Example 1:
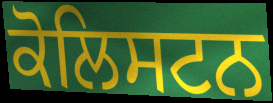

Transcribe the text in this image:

ਕੋਲਿਸਟਨ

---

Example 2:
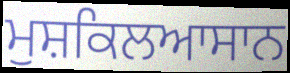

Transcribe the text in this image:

ਮੁਸ਼ਕਿਲਆਸਾਨ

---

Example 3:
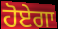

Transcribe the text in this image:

ਹੋਏਗਾ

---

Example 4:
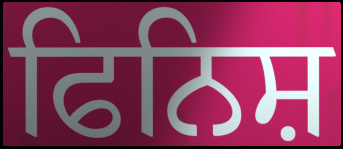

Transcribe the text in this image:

ਫਿਨਿਸ਼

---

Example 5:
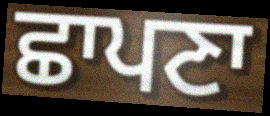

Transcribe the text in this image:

ਛਾਪਣਾ